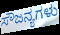
ಸೌಜನ್ಯಗಳು